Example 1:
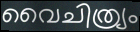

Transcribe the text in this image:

വൈചിത്ര്യം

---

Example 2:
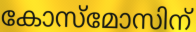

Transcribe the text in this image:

കോസ്മോസിന്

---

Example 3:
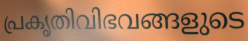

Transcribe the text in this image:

പ്രകൃതിവിഭവങ്ങളുടെ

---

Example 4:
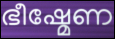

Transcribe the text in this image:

ഭീഷ്മേണ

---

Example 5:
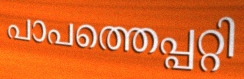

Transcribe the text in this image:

പാപത്തെപ്പറ്റി